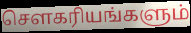
சௌகரியங்களும்